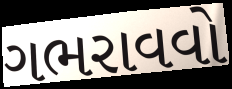
ગભરાવવો